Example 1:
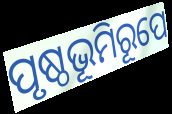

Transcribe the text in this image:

ପୃଷ୍ଠଭୂମିରୂପେ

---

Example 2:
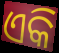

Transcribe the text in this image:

ଏକି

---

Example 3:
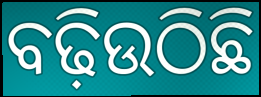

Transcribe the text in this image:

ବଢ଼ିଉଠିଛି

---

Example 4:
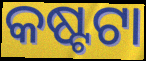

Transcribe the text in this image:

କଷ୍ଟଟା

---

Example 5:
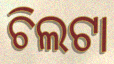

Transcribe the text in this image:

ଚିଲଟା